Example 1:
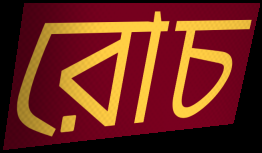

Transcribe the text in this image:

রোচ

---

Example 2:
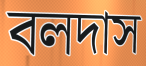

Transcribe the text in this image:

বলদাস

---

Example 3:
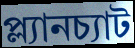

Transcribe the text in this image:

প্ল্যানচ্যাট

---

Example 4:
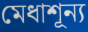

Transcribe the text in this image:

মেধাশূন্য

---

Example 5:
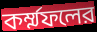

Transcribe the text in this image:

কর্ম্মফলের